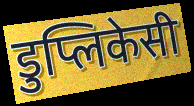
डुप्लिकेसी